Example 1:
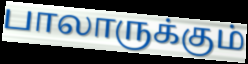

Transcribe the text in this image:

பாலாருக்கும்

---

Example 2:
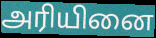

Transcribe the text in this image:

அரியினை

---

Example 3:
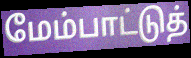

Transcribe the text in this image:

மேம்பாட்டுத்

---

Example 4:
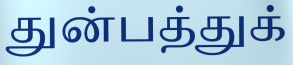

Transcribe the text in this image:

துன்பத்துக்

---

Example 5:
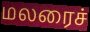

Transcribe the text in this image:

மலரைச்